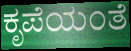
ಕೃಪೆಯಂತೆ